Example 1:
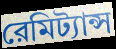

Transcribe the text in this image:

রেমিট্যান্স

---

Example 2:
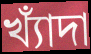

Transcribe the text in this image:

খ্যাঁদা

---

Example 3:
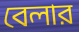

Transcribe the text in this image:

বেলার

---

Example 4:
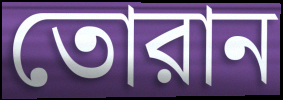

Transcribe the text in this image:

তোরান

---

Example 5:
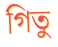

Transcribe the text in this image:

গিতু